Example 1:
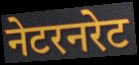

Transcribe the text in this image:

नेटरनरेट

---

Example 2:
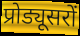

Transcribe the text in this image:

प्रोड्यूसरों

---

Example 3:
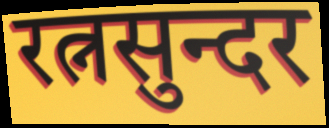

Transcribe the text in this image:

रत्नसुन्दर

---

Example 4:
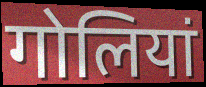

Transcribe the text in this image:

गोलियां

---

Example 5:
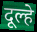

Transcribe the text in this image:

दूल्हे